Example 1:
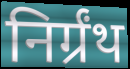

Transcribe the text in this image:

निर्ग्रंथ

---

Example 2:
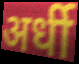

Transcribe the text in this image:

अर्धी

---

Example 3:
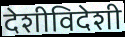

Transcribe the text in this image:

देशीविदेशी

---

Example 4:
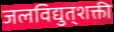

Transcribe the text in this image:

जलविद्युत्‌शक्ती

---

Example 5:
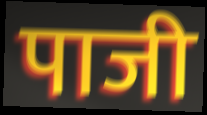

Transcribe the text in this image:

पाजी